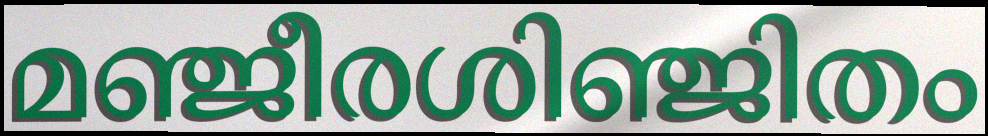
മഞ്ജീരശിഞ്ജിതം